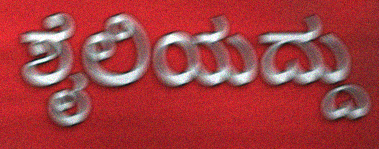
ಶೈಲಿಯದ್ದು